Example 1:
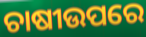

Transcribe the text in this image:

ଚାଷୀଉପରେ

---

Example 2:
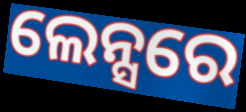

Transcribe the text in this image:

ଲେନ୍ସରେ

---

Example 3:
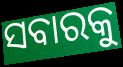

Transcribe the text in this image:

ସବାରକୁ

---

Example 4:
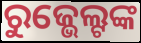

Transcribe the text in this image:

ରୁଜ୍ଭେଲ୍ଟଙ୍କ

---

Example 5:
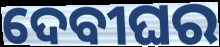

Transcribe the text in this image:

ଦେବୀଘର